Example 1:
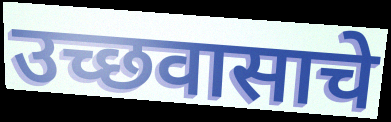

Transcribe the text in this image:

उच्छवासाचे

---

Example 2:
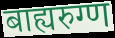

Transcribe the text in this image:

बाह्यरुग्ण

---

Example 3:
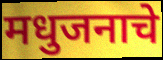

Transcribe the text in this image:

मधुजनाचे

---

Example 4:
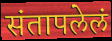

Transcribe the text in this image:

संतापलेलं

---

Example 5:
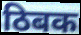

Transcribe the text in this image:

ठिबक